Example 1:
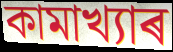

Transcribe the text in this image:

কামাখ্যাৰ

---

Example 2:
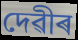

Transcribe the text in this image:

দেৱীৰ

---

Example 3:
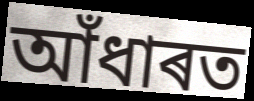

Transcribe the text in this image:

আঁধাৰত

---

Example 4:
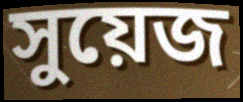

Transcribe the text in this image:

সুয়েজ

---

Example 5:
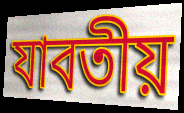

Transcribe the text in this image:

যাবতীয়